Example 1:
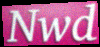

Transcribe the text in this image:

Nwd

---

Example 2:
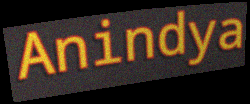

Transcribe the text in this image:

Anindya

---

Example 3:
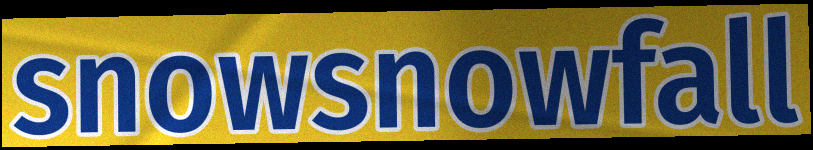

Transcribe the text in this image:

snowsnowfall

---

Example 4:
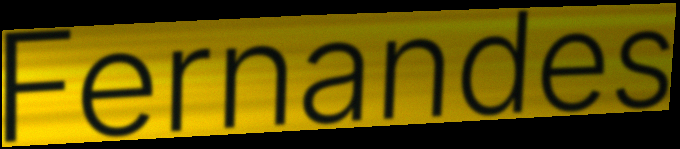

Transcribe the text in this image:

Fernandes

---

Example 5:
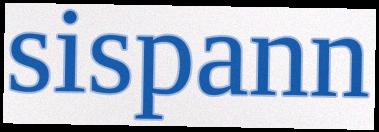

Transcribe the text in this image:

sispann